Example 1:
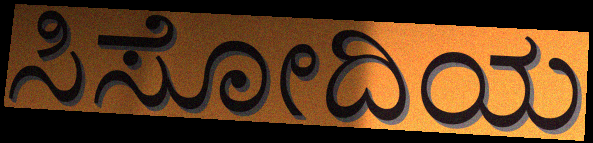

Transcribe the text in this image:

ಸಿಸೋದಿಯ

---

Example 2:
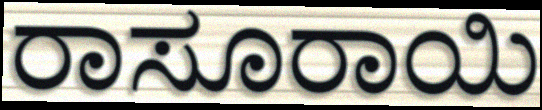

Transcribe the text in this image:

ರಾಸೂರಾಯಿ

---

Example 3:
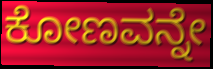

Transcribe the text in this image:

ಕೋಣವನ್ನೇ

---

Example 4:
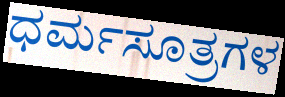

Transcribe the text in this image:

ಧರ್ಮಸೂತ್ರಗಳ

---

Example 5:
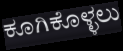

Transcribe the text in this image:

ಕೂಗಿಕೊಳ್ಳಲು